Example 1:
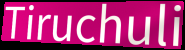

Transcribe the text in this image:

Tiruchuli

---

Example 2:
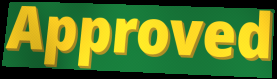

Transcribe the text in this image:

Approved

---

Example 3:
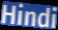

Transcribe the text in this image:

Hindi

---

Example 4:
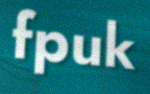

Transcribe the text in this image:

fpuk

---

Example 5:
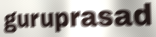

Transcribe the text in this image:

guruprasad